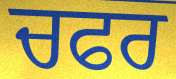
ਚਫਰ